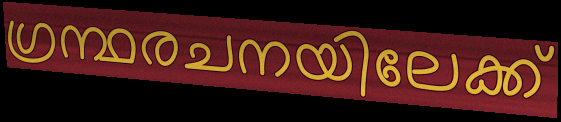
ഗ്രന്ഥരചനയിലേക്ക്